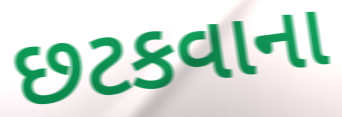
છટકવાના